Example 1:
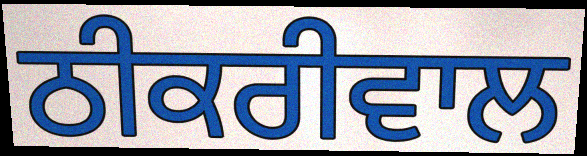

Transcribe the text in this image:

ਠੀਕਰੀਵਾਲ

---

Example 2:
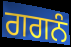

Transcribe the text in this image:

ਗਗਨੰ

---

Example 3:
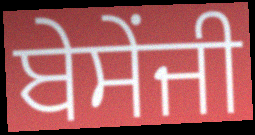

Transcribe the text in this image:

ਬੇਸੇਂਜੀ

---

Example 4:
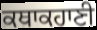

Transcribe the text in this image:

ਕਥਾਕਹਾਣੀ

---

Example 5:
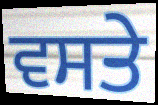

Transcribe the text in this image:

ਵਸਤੇ